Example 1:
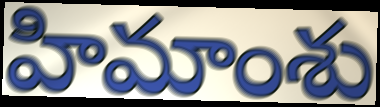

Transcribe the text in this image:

హిమాంశు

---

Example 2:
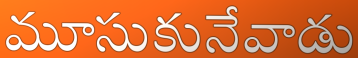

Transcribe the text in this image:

మూసుకునేవాడు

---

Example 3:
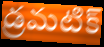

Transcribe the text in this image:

డ్రమటిక్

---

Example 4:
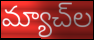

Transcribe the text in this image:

మ్యాచ్‌ల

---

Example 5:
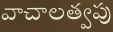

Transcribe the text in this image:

వాచాలత్వపు